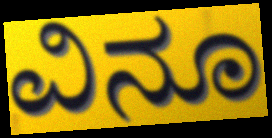
ವಿನೂ